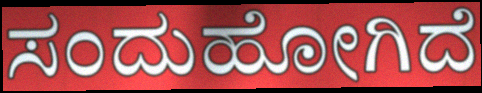
ಸಂದುಹೋಗಿದೆ